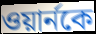
ওয়ার্নকে